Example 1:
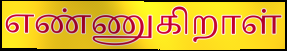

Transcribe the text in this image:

எண்ணுகிறாள்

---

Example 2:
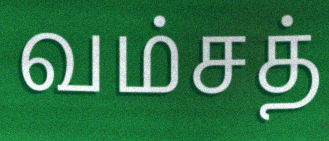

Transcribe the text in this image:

வம்சத்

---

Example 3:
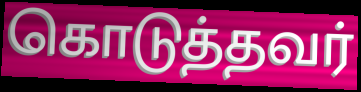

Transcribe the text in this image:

கொடுத்தவர்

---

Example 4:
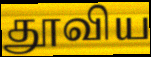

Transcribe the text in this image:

தூவிய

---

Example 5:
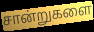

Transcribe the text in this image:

சான்றுகளை